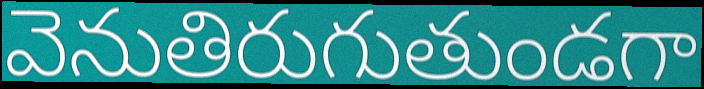
వెనుతిరుగుతుండగా